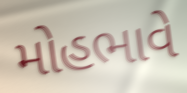
મોહભાવે